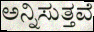
ಅನ್ನಿಸುತ್ತವೆ